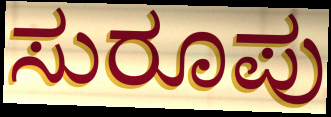
ಸುರೂಪು